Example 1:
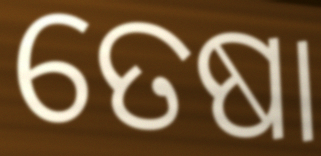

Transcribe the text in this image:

ତେଷା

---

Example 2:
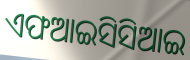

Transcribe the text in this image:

ଏଫଆଇସିସିଆଇ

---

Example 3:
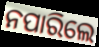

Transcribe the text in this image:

ନପାରିଲେ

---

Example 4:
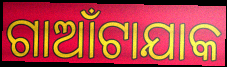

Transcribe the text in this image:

ଗାଆଁଟାଯାକ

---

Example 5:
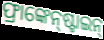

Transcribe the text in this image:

ଫ୍ରାଙ୍କେନ୍‌ଷ୍ଟାଇନ୍